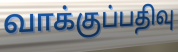
வாக்குப்பதிவு